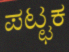
ಪಟ್ಟಕ